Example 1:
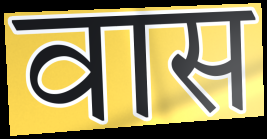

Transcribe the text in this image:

वास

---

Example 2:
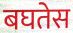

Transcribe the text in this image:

बघतेस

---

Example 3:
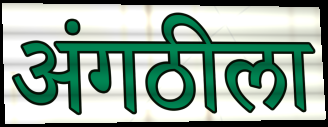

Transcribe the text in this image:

अंगठीला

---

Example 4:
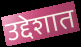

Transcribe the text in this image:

उद्देशात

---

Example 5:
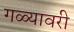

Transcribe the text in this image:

गळ्यावरी